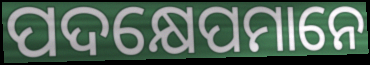
ପଦକ୍ଷେପମାନେ